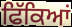
ਫਿੱਕਿਆਂ